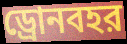
ড্রোনবহর